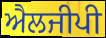
ਐਲਜੀਪੀ